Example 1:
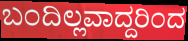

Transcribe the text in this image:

ಬಂದಿಲ್ಲವಾದ್ದರಿಂದ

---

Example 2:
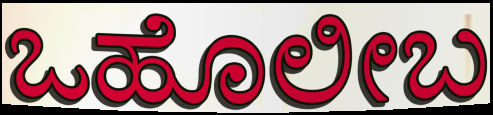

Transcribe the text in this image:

ಒಹೊಲೀಬ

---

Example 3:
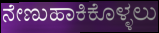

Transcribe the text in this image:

ನೇಣುಹಾಕಿಕೊಳ್ಳಲು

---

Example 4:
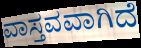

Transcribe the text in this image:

ವಾಸ್ತವವಾಗಿದೆ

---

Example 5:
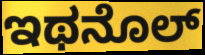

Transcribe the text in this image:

ಇಥನೊಲ್